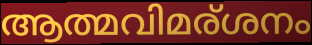
ആത്മവിമര്ശനം